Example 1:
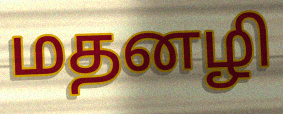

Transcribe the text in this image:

மதனழி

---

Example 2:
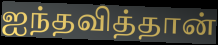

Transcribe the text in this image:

ஐந்தவித்தான்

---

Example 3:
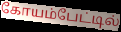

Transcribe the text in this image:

கோயம்பேட்டில்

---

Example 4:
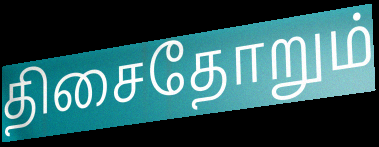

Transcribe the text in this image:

திசைதோறும்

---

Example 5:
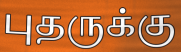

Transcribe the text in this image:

புதருக்கு